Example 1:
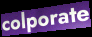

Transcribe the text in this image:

colporate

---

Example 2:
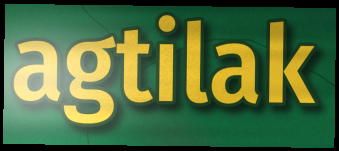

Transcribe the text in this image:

agtilak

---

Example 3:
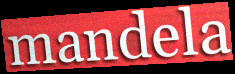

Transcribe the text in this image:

mandela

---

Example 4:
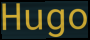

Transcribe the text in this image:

Hugo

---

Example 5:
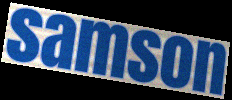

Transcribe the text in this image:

samson